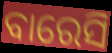
ବାରେସି